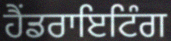
ਹੈਂਡਰਾਇਟਿੰਗ